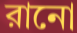
রানো